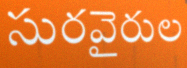
సురవైరుల